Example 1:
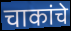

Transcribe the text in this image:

चाकांचे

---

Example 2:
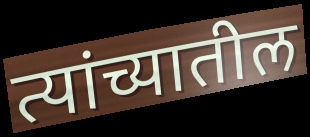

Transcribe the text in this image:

त्यांच्यातील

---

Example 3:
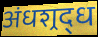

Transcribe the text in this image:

अंधश्रद्ध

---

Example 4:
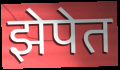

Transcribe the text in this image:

झेपेत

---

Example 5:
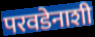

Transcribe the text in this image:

परवडेनाशी